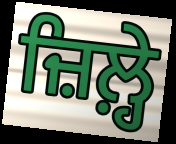
ਜ਼ਿਲ਼੍ਹੇ